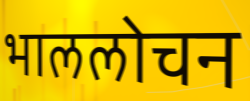
भाललोचन